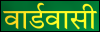
वार्डवासी